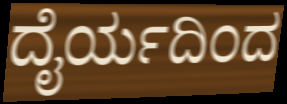
ದೈರ್ಯದಿಂದ